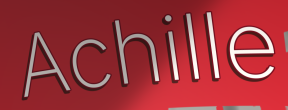
Achille